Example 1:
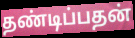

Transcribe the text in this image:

தண்டிப்பதன்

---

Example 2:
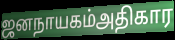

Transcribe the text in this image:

ஜனநாயகம்அதிகார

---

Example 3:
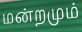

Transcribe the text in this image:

மன்றமும்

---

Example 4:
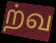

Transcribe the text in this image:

ற்வ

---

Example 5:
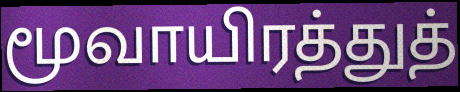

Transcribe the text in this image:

மூவாயிரத்துத்